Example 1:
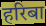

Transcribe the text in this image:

हरिबा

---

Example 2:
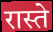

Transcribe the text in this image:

रास्ते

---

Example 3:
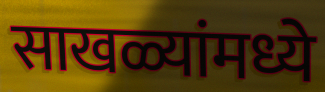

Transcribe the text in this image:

साखळ्यांमध्ये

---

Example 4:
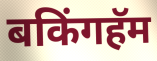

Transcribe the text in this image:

बकिंगहॅम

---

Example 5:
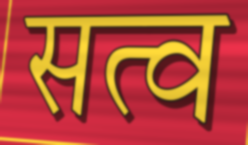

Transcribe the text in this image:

सत्व